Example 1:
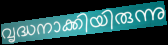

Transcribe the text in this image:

വൃദ്ധനാക്കിയിരുന്നു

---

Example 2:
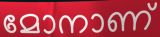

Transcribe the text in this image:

മോനാണ്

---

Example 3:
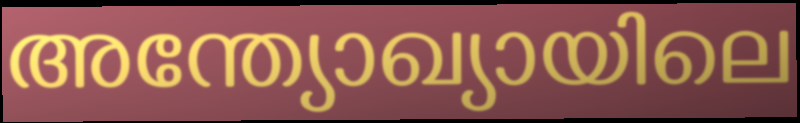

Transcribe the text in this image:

അന്ത്യോഖ്യായിലെ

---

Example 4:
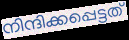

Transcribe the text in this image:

നിന്ദിക്കപ്പെട്ടത്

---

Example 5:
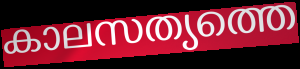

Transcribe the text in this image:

കാലസത്യത്തെ